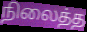
நிலைத்த